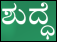
ಶುದ್ಧೆ